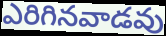
ఎరిగినవాడవు